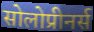
सोलोप्रीनर्स